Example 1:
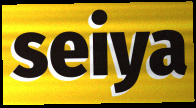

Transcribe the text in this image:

seiya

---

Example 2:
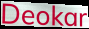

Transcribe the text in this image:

Deokar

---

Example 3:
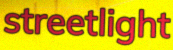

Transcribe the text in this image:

streetlight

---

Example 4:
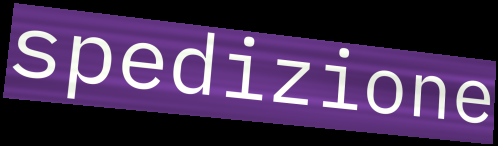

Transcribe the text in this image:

spedizione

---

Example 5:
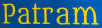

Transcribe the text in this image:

Patram